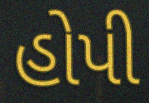
હોપી